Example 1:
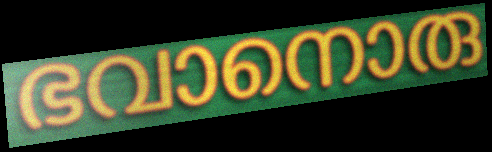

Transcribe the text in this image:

ഭവാനൊരു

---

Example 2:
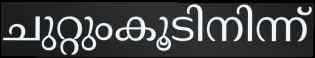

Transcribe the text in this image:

ചുറ്റുംകൂടിനിന്ന്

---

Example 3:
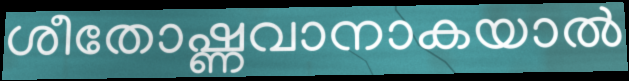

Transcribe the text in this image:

ശീതോഷ്ണവാനാകയാൽ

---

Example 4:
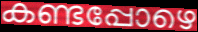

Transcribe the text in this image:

കണ്ടപ്പോഴെ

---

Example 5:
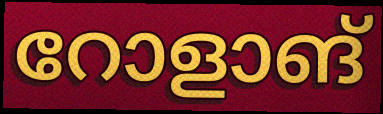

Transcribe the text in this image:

റോളാങ്